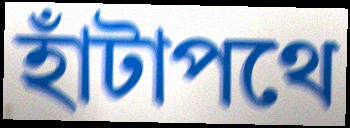
হাঁটাপথে